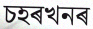
চহৰখনৰ